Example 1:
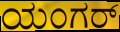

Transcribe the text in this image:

ಯಂಗರ್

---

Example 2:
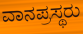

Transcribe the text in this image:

ವಾನಪ್ರಸ್ಥರು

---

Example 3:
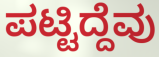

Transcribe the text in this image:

ಪಟ್ಟಿದ್ದೆವು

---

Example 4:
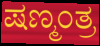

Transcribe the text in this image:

ಷಣ್ಮಂತ್ರ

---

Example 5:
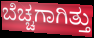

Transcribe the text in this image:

ಬೆಚ್ಚಗಾಗಿತ್ತು